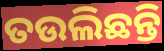
ତଉଲିଛନ୍ତି